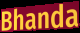
Bhanda